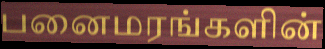
பனைமரங்களின்